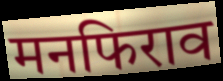
मनफिराव